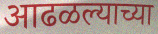
आढळल्याच्या